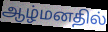
ஆழ்மனதில்